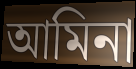
আমিনা